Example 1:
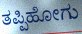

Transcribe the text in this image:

ತಪ್ಪಿಹೋಗು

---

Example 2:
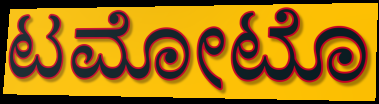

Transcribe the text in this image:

ಟಮೋಟೊ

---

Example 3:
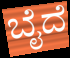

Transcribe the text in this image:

ಬೈದೆ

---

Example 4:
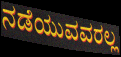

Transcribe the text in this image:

ನಡೆಯುವವರಲ್ಲ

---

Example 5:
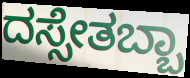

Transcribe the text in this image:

ದಸ್ಸೇತಬ್ಬಾ